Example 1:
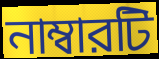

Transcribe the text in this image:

নাম্বারটি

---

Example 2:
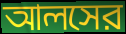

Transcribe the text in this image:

আলসের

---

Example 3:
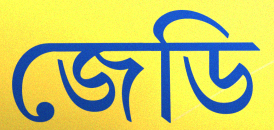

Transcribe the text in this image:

জেডি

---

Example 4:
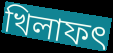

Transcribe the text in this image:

খিলাফৎ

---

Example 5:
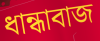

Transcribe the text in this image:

ধান্ধাবাজ